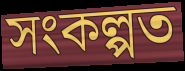
সংকল্পত